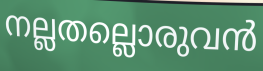
നല്ലതല്ലൊരുവൻ